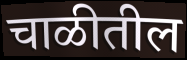
चाळीतील